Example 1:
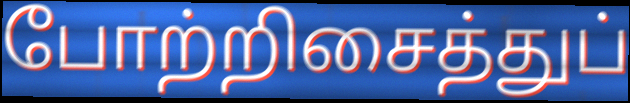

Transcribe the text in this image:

போற்றிசைத்துப்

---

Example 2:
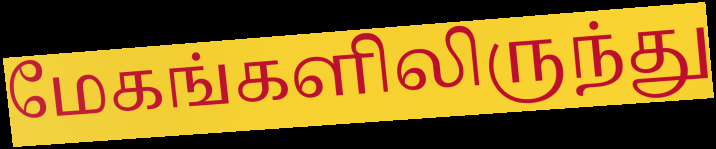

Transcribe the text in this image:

மேகங்களிலிருந்து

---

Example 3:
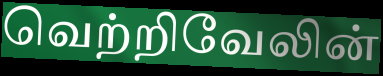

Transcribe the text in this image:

வெற்றிவேலின்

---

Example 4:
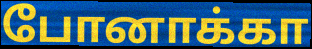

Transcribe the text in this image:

போனாக்கா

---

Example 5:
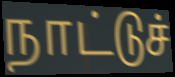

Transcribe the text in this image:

நாட்டுச்